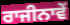
ਰਾਜੀਨਾਵੇਂ